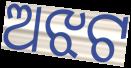
ଅଝଟ